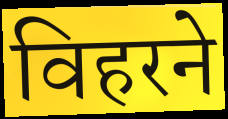
विहरने